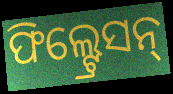
ଫିଲ୍ଟ୍ରେସନ୍